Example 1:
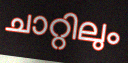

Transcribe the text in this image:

ചാറ്റിലും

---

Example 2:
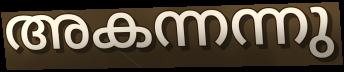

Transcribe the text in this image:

അകന്നന്നു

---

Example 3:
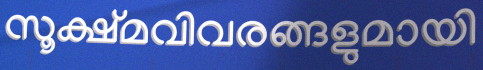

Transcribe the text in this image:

സൂക്ഷ്മവിവരങ്ങളുമായി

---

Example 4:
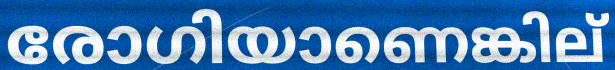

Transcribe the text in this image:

രോഗിയാണെങ്കില്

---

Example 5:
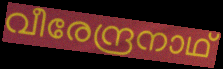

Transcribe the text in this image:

വീരേന്ദ്രനാഥ്